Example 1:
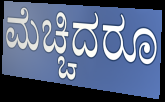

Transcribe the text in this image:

ಮೆಚ್ಚಿದರೂ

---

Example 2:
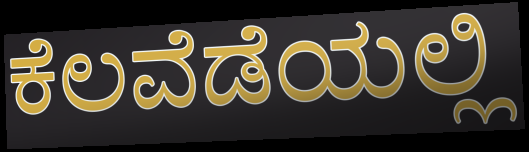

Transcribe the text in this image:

ಕೆಲವೆಡೆಯಲ್ಲಿ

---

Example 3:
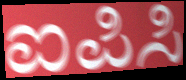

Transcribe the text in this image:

ಐಪಿಸಿ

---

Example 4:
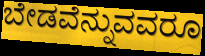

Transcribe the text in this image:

ಬೇಡವೆನ್ನುವವರೂ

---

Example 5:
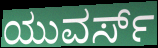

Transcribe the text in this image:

ಯುವರ್ಸ್